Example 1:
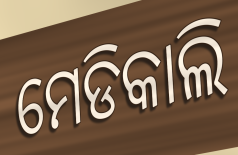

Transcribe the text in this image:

ମେଡିକାଲି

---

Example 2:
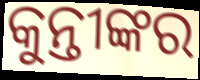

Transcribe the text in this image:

କୁନ୍ତୀଙ୍କର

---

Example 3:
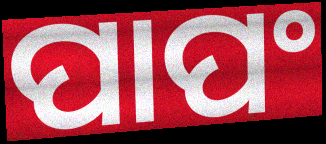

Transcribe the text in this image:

ପାପଂ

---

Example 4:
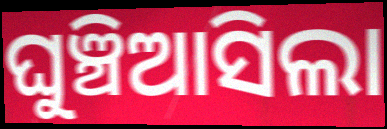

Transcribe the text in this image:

ଘୁଞ୍ଚିଆସିଲା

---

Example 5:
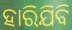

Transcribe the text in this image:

ହାରିଯିବି